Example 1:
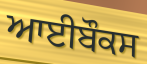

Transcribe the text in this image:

ਆਈਬੌਕਸ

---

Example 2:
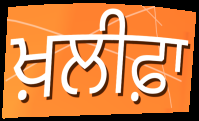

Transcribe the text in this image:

ਖ਼ਲੀਫ਼ਾ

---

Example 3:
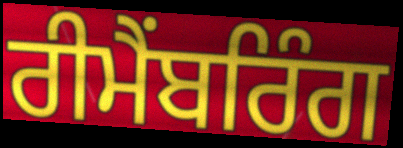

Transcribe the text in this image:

ਰੀਮੈਂਬਰਿੰਗ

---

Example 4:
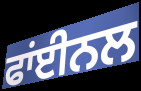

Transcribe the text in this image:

ਫਾਂਈਨਲ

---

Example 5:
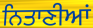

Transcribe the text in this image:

ਨਿਤਾਣੀਆਂ